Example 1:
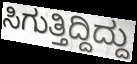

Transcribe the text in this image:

ಸಿಗುತ್ತಿದ್ದಿದ್ದು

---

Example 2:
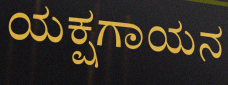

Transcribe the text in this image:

ಯಕ್ಷಗಾಯನ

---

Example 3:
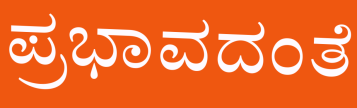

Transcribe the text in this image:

ಪ್ರಭಾವದಂತೆ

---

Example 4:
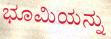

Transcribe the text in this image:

ಭೂಮಿಯನ್ನು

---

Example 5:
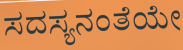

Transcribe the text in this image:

ಸದಸ್ಯನಂತೆಯೇ